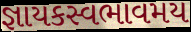
જ્ઞાયકસ્વભાવમય